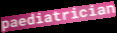
paediatrician